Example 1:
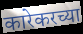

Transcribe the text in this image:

कारेकरच्या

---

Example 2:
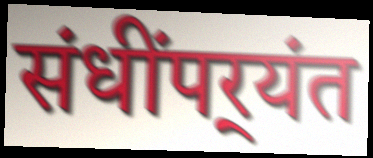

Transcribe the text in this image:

संधींपर्यंत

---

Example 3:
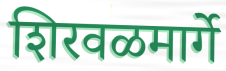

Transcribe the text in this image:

शिरवळमार्गे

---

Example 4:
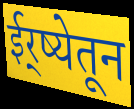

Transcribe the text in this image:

ईर्ष्येतून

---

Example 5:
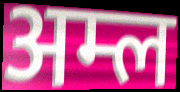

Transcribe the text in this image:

अम्ल